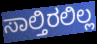
ಸಾಲ್ತಿರಲಿಲ್ಲ